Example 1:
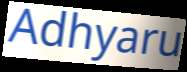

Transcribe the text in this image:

Adhyaru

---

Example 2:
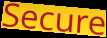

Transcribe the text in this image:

Secure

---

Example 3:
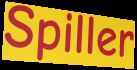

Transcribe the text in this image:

Spiller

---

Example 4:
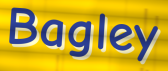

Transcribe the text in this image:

Bagley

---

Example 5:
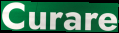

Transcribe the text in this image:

Curare